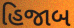
હિજાબ